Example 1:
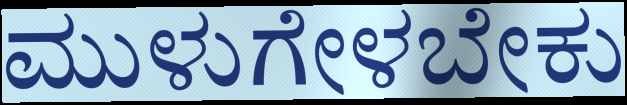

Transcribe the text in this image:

ಮುಳುಗೇಳಬೇಕು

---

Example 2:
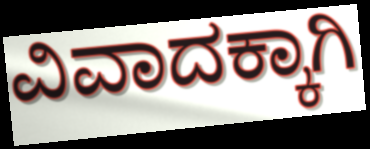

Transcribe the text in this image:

ವಿವಾದಕ್ಕಾಗಿ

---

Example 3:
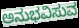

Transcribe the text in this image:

ಅನುಭವಿಸುವ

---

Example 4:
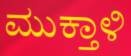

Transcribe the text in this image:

ಮುಕ್ತಾಳಿ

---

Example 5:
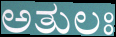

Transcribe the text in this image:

ಅತುಲಃ